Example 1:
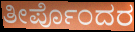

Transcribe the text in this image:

ತೀರ್ಪೊಂದರ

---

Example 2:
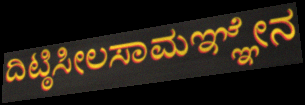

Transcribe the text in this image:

ದಿಟ್ಠಿಸೀಲಸಾಮಞ್ಞೇನ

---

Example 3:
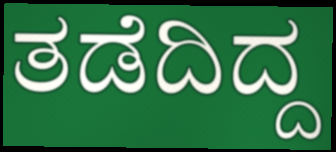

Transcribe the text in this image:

ತಡೆದಿದ್ದ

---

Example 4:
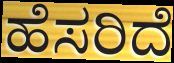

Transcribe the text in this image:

ಹೆಸರಿದೆ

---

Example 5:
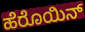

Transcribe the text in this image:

ಹೆರೊಯಿನ್